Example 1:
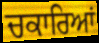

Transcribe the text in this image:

ਚਕਾਰਿਆਂ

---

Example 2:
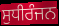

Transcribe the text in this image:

ਸੁਧੀਰੰਜਨ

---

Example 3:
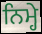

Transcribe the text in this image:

ਨਿਮ੍ਹੇ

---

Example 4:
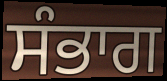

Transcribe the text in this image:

ਸੰਭਾਗ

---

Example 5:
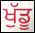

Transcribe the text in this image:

ਖੁੱਡੂ